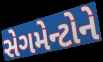
સેગમેન્ટોને